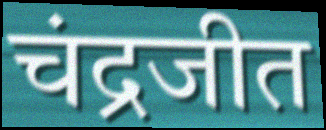
चंद्रजीत